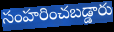
సంహరించబడ్డారు